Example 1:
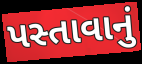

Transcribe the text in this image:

પસ્તાવાનું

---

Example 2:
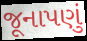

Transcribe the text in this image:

જૂનાપણું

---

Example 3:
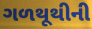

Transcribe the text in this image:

ગળથૂથીની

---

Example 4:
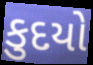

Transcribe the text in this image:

કુદયો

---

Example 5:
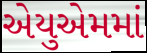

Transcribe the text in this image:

એયુએમમાં